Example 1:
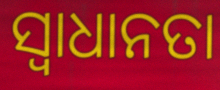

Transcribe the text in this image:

ସ୍ୱାଧାନତା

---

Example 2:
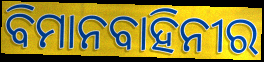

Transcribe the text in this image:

ବିମାନବାହିନୀର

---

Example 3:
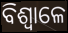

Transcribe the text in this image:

ବିଶ୍ଵାଳେ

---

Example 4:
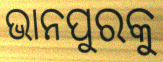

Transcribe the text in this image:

ଭାନପୁରକୁ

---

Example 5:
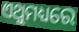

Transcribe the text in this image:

ଏଥୁମଧ୍ୟରେ